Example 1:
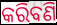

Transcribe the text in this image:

କରିବଣି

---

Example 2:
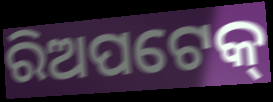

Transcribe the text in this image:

ରିଅପଟେକ୍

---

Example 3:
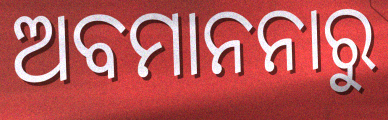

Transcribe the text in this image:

ଅବମାନନାରୁ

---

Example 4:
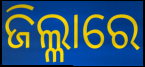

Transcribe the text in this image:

ଜିଲ୍ଳାରେ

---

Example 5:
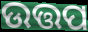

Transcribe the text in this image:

ଉତ୍ତପ